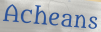
Acheans